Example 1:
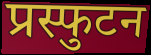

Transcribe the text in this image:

प्रस्फुटन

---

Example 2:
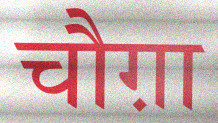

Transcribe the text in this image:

चौग़ा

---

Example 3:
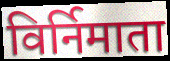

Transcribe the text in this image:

विर्निमाता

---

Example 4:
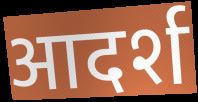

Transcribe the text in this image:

आदर्श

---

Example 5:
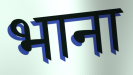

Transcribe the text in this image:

भाना